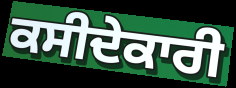
ਕਸੀਦੇਕਾਰੀ